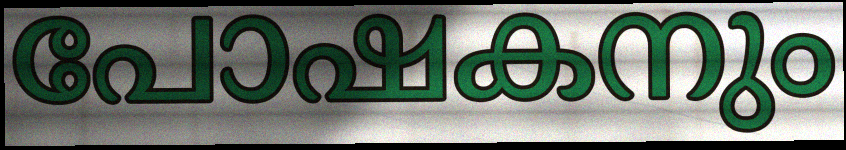
പോഷകനും